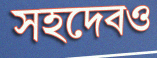
সহদেবও